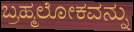
ಬ್ರಹ್ಮಲೋಕವನ್ನು